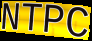
NTPC